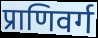
प्राणिवर्ग